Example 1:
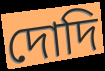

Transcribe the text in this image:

দোদি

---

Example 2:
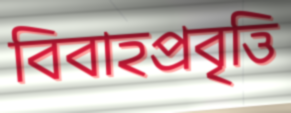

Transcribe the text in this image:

বিবাহপ্রবৃত্তি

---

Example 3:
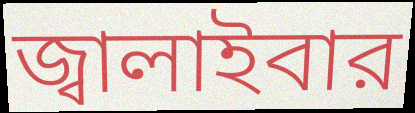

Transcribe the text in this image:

জ্বালাইবার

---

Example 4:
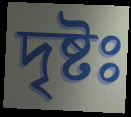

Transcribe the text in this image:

দৃষ্টঃ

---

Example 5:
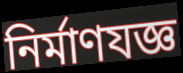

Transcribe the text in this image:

নির্মাণযজ্ঞ